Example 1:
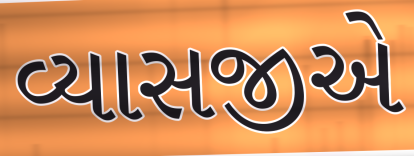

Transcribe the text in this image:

વ્યાસજીએ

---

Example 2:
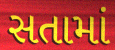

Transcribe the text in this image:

સતામાં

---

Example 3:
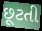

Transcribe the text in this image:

છૂટતી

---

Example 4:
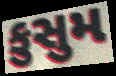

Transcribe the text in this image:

કુસુમ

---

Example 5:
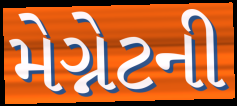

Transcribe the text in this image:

મેગ્નેટની